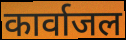
कार्वाजल